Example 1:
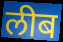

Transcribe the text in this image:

लीब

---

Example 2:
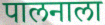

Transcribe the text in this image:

पालनाला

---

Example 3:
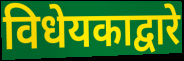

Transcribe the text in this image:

विधेयकाद्वारे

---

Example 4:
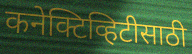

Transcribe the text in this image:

कनेक्टिव्हिटीसाठी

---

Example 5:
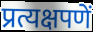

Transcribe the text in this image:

प्रत्यक्षपणें